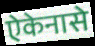
ऐकेनासे